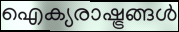
ഐക്യരാഷ്ട്രങ്ങൾ